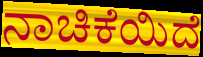
ನಾಚಿಕೆಯಿದೆ